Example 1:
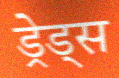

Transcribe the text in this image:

ड्रेड्स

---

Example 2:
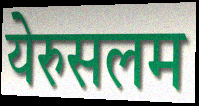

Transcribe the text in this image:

येरुसलम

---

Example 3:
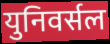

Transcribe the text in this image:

युनिवर्सल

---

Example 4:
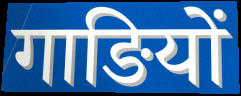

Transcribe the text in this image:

गाङियों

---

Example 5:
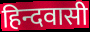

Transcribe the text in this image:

हिन्दवासी